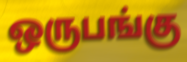
ஒருபங்கு